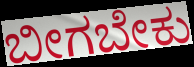
ಬೀಗಬೇಕು